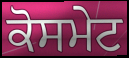
ਕੋਸਮੇਟ